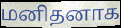
மனிதனாக